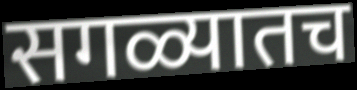
सगळ्यातच